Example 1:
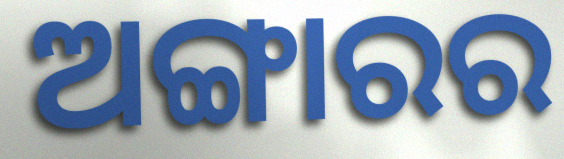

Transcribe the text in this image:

ଅଙ୍ଗାରର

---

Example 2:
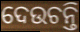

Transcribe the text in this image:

ଦେଉଚନ୍ତି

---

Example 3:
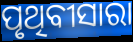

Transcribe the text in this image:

ପୃଥିବୀସାରା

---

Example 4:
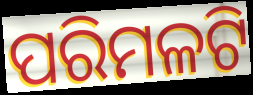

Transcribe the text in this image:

ପରିମଳଟି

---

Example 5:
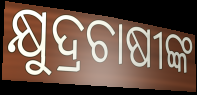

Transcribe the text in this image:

କ୍ଷୁଦ୍ରଚାଷୀଙ୍କ